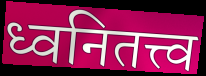
ध्वनितत्त्व